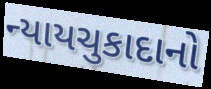
ન્યાયચુકાદાનો